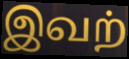
இவற்